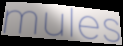
mules